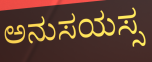
ಅನುಸಯಸ್ಸ